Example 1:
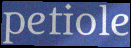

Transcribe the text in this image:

petiole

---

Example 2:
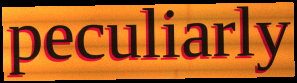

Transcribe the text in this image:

peculiarly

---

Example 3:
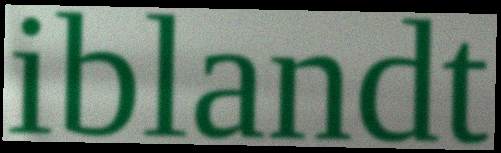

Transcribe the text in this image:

iblandt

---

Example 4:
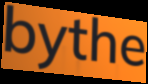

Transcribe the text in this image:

bythe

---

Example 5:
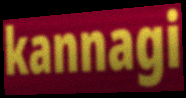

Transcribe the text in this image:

kannagi